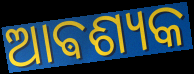
ଆଵଶ୍ୟକ